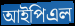
আইপিএল